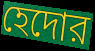
হেদোর